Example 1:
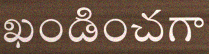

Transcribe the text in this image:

ఖండించగా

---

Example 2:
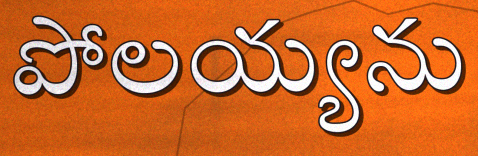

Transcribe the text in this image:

పోలయ్యను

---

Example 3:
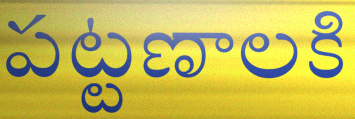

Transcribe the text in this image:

పట్టణాలకి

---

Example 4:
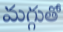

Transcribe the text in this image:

మగ్గుతో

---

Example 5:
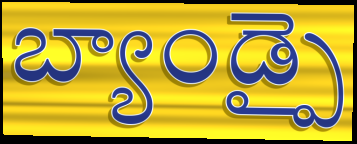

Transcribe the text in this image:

బ్యాండ్పై